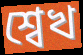
শ্বেখ